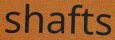
shafts